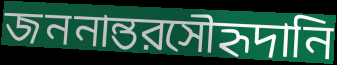
জননান্তরসৌহৃদানি